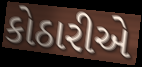
કોઠારીએ